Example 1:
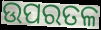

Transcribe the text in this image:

ଉପରତଳ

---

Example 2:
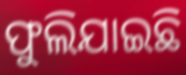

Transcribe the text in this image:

ଫୁଲିଯାଇଛି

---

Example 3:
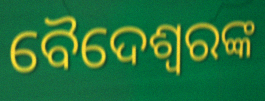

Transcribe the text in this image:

ବୈଦେଶ୍ୱରଙ୍କ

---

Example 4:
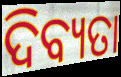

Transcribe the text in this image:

ଦିବ୍ୟତା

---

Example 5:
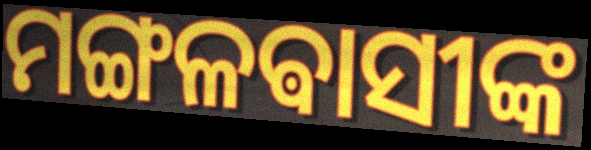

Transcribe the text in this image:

ମଙ୍ଗଳଵାସୀଙ୍କ